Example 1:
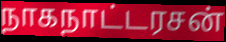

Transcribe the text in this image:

நாகநாட்டரசன்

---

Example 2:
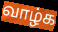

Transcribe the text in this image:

வாழ்க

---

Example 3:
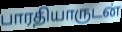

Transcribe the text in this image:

பாரதியாருடன்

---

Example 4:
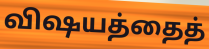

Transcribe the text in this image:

விஷயத்தைத்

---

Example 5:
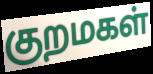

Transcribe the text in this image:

குறமகள்